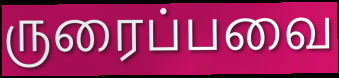
ருரைப்பவை